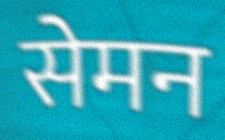
सेमन